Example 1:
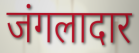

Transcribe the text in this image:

जंगलादार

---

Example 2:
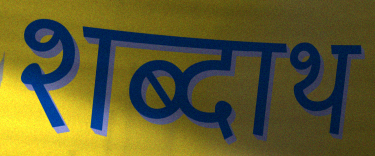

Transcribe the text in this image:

शब्दाथ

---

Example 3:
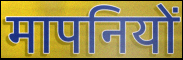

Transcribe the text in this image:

मापनियों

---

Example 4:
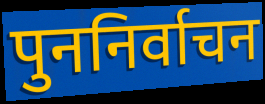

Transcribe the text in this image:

पुननिर्वाचन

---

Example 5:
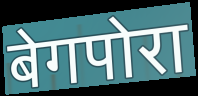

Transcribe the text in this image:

बेगपोरा